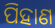
ପିହାଣ